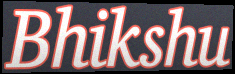
Bhikshu